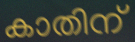
കാതിന്